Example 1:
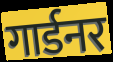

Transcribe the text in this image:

गार्डनर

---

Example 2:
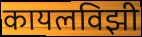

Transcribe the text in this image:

कायलविझी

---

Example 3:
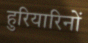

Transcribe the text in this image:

हुरियारिनों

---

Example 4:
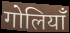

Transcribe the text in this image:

गोलियाँ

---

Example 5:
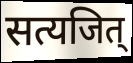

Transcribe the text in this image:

सत्यजित्